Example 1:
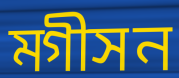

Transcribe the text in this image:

মগীসন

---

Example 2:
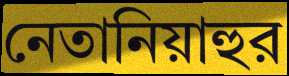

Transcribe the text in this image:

নেতানিয়াহুর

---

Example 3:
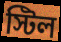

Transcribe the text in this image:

স্টিল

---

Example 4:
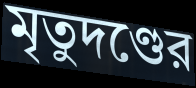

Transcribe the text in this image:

মৃতুদণ্ডের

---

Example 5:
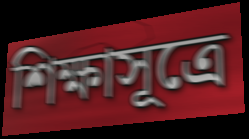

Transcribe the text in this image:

শিক্ষাসূত্রে